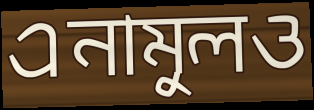
এনামুলও